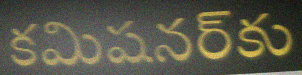
కమిషనర్‌కు